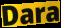
Dara